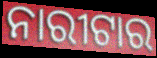
ନାରୀଟାର